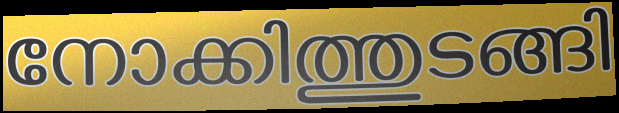
നോക്കിത്തുടങ്ങി